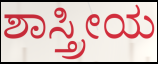
ಶಾಸ್ತ್ರೀಯ